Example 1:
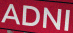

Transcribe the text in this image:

ADNI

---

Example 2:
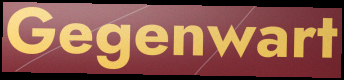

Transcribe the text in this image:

Gegenwart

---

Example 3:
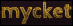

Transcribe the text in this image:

mycket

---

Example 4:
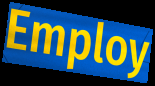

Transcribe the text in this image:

Employ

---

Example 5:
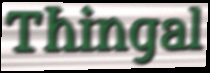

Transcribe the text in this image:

Thingal